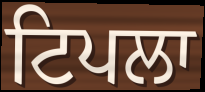
ਟਿਪਲਾ